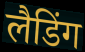
लैडिंग